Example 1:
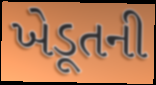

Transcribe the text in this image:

ખેડૂતની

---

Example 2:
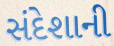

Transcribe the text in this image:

સંદેશાની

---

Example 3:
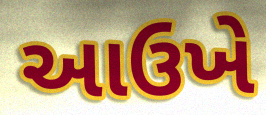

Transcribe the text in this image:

આઉખે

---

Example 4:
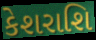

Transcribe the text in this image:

કેશરાશિ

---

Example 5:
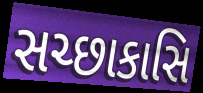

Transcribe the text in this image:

સચ્છાકાસિ